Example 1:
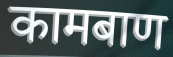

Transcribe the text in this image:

कामबाण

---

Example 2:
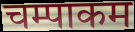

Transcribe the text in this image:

चम्पाकम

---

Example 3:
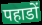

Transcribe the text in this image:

पहाडों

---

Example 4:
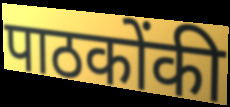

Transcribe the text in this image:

पाठकोंकी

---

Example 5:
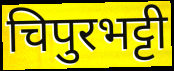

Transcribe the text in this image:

चिपुरभट्टी